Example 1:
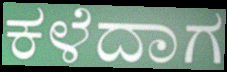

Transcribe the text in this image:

ಕಳೆದಾಗ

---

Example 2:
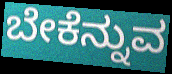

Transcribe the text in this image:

ಬೇಕೆನ್ನುವ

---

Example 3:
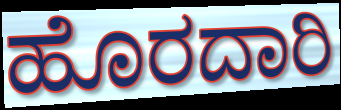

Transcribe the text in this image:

ಹೊರದಾರಿ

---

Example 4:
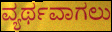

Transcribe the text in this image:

ವ್ಯರ್ಥವಾಗಲು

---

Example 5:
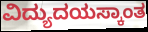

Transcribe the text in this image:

ವಿದ್ಯುದಯಸ್ಕಾಂತ